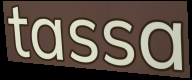
tassa